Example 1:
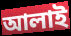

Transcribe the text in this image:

আলাই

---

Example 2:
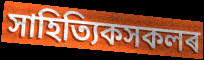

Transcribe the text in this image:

সাহিত্যিকসকলৰ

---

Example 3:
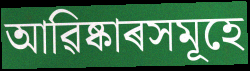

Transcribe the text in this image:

আৱিষ্কাৰসমূহে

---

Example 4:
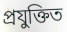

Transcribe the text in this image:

প্ৰযুক্তিত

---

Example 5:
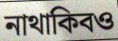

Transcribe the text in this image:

নাথাকিবও